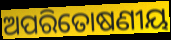
ଅପରିତୋଷଣୀୟ